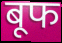
बूफ